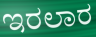
ಇರಲಾರ